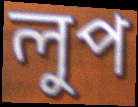
লুপ